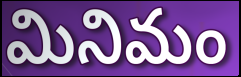
మినిమం